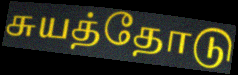
சுயத்தோடு